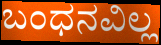
ಬಂಧನವಿಲ್ಲ